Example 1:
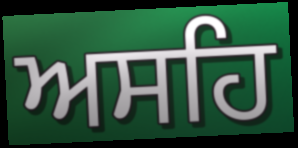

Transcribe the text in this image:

ਅਸਹਿ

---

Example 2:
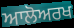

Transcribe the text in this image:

ਆਲੋਅਰਖ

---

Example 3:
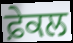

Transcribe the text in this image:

ਫ਼ੇਕਲ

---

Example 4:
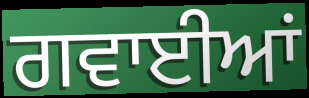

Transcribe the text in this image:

ਗਵਾਈਆਂ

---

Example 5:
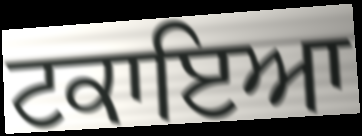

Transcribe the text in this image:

ਟਕਾਇਆ